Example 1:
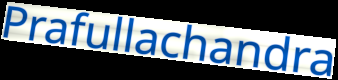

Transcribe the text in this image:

Prafullachandra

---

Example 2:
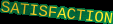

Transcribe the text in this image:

SATISFACTION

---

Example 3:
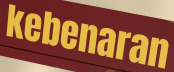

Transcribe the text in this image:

kebenaran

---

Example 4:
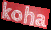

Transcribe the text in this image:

koha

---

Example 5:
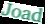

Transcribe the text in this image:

Joad